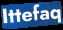
Ittefaq